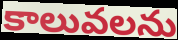
కాలువలను